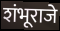
शंभूराजे